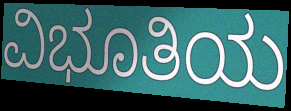
ವಿಭೂತಿಯ